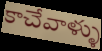
కాచేవాళ్ళు